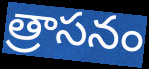
త్రాసనం